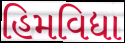
હિમવિદ્યા